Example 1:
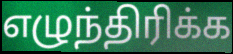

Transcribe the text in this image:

எழுந்திரிக்க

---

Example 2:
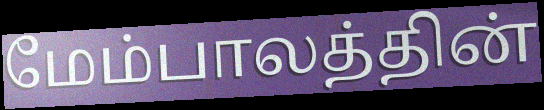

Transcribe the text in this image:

மேம்பாலத்தின்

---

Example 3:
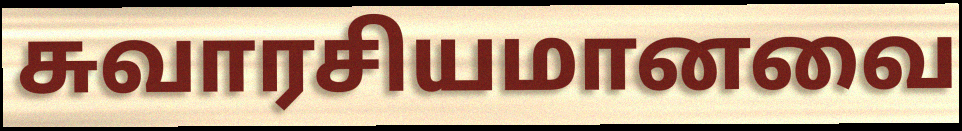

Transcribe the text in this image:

சுவாரசியமானவை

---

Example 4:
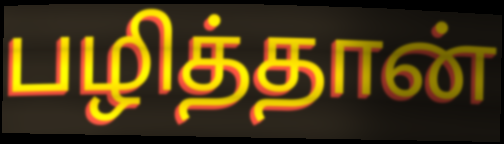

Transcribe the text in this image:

பழித்தான்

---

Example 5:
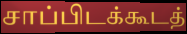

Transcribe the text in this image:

சாப்பிடக்கூடத்